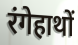
रंगेहाथों